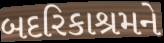
બદરિકાશ્રમને